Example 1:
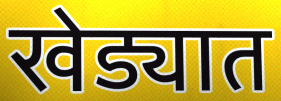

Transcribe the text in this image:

खेड्यात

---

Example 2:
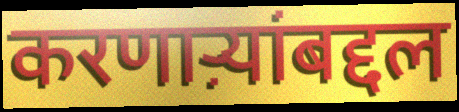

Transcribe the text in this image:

करणाऱ्‍यांबद्दल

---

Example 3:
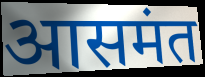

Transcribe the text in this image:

आसमंत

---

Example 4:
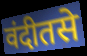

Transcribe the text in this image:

वंदीतसे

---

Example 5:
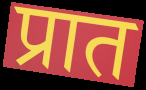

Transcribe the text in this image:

प्रात